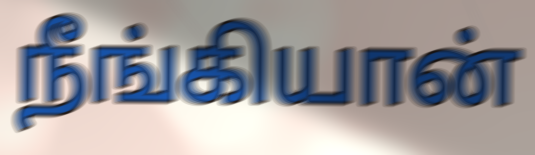
நீங்கியான்